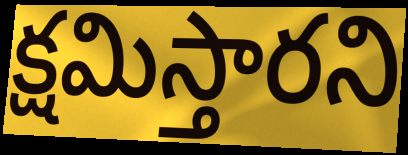
క్షమిస్తారని